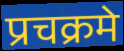
प्रचक्रमे